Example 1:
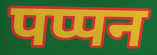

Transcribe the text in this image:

पप्पन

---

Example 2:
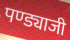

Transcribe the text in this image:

पण्ड्याजी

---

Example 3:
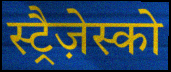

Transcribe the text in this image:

स्ट्रैज़ेस्को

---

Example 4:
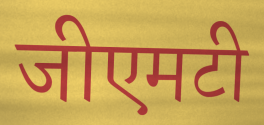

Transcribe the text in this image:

जीएमटी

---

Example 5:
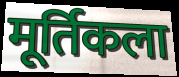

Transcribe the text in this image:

मूर्तिकला